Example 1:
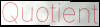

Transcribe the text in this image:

Quotient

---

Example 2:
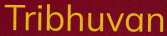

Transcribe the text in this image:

Tribhuvan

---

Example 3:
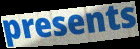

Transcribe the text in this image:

presents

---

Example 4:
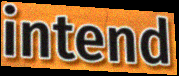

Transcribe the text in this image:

intend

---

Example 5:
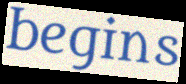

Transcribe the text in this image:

begins